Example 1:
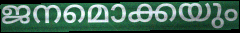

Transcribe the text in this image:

ജനമൊക്കയും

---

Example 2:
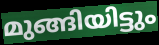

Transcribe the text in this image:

മുങ്ങിയിട്ടും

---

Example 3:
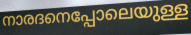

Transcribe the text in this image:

നാരദനെപ്പോലെയുള്ള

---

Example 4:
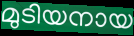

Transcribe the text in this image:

മുടിയനായ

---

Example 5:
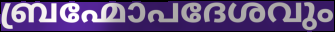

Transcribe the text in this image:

ബ്രഹ്മോപദേശവും